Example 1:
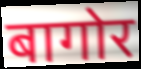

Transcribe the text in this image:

बागोर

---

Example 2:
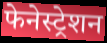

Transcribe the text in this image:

फेनेस्ट्रेशन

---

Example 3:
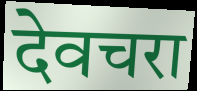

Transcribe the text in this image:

देवचरा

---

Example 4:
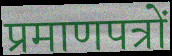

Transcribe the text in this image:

प्रमाणपत्रों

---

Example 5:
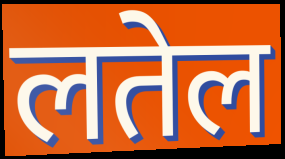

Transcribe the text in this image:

लतेल